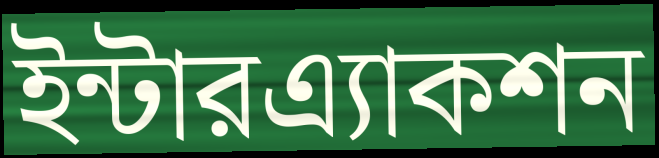
ইন্টারএ্যাকশন